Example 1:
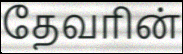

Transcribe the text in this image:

தேவரின்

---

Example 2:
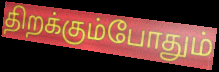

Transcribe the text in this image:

திறக்கும்போதும்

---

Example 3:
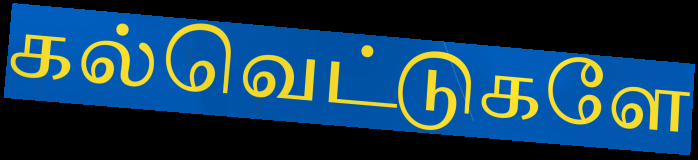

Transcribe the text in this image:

கல்வெட்டுகளே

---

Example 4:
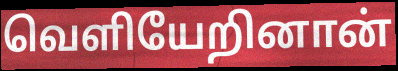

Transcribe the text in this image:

வெளியேறினான்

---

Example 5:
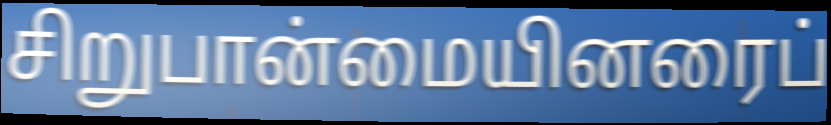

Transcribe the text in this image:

சிறுபான்மையினரைப்